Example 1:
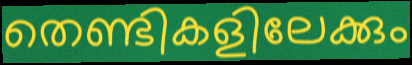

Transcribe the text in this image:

തെണ്ടികളിലേക്കും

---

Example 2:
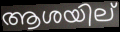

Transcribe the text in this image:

ആശയില്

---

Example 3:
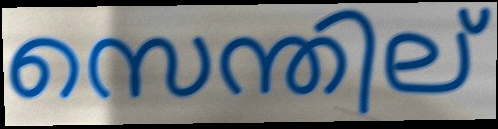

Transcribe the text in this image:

സെന്തില്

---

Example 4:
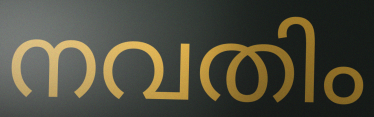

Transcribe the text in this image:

നവതിം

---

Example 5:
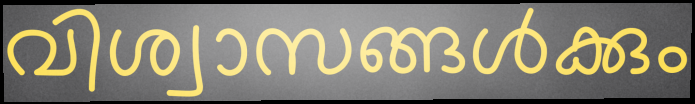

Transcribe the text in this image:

വിശ്വാസങ്ങൾക്കും